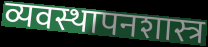
व्यवस्थापनशास्त्र